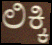
ಲಿಕ್ಕಿ